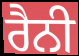
ਰੈਨੀ